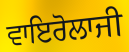
ਵਾਇਰੋਲਾਜੀ